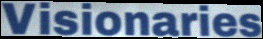
Visionaries